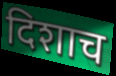
दिशाच